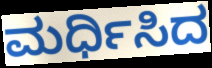
ಮರ್ಧಿಸಿದ